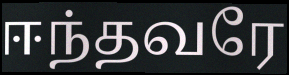
ஈந்தவரே